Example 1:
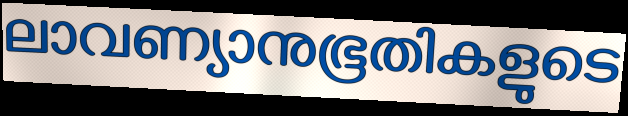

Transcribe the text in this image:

ലാവണ്യാനുഭൂതികളുടെ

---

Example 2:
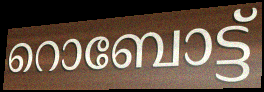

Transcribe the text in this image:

റൊബോട്ട്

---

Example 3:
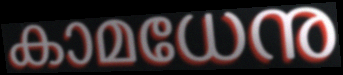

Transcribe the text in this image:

കാമധേനു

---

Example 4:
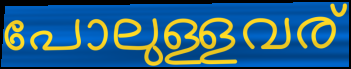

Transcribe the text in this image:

പോലുള്ളവര്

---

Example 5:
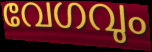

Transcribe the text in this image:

വേഗവും